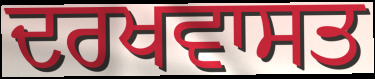
ਦਰਖਵਾਸਤ